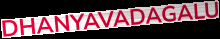
DHANYAVADAGALU